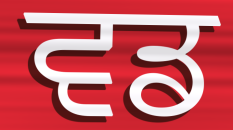
ਵਡ